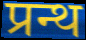
प्रन्थ